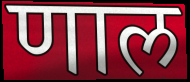
णाल